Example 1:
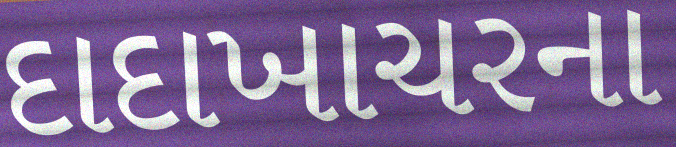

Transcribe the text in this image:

દાદાખાચરના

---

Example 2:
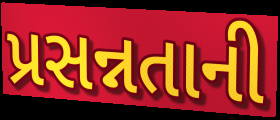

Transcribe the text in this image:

પ્રસન્નતાની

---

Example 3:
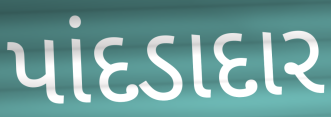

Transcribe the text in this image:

પાંદડાદાર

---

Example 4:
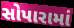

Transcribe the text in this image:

સોપારામાં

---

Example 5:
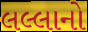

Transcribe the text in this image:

લલ્લાનો